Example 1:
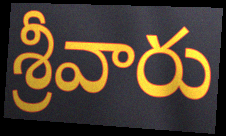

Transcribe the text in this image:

శ్రీవారు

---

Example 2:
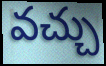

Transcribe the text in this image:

వచ్చు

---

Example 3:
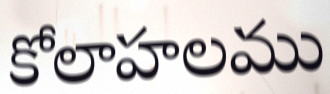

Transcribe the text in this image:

కోలాహలము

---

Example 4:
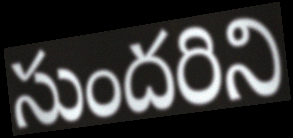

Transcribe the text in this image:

సుందరిని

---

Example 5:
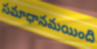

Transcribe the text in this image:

సమాధానమయింది